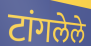
टांगलेले